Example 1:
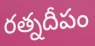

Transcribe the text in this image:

రత్నదీపం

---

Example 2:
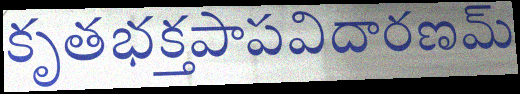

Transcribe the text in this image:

కృతభక్తపాపవిదారణమ్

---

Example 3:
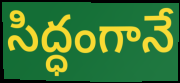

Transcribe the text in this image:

సిద్ధంగానే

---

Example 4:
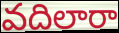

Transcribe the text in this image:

వదిలారా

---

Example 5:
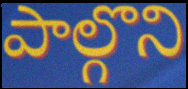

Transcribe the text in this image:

పాల్గొని